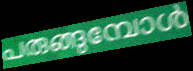
പരുങ്ങുമ്പോൾ